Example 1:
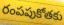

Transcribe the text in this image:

రంపపుకోతకు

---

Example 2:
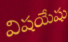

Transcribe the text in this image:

విషయేషు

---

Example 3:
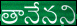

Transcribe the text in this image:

తానేనని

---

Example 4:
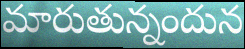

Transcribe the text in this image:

మారుతున్నందున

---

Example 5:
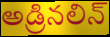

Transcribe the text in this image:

అడ్రినలిన్